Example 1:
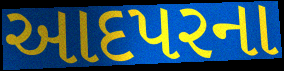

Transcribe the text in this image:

આદપરના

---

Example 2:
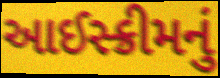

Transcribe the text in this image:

આઈસ્ક્રીમનું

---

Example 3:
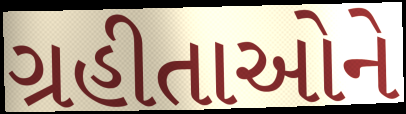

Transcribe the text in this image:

ગ્રહીતાઓને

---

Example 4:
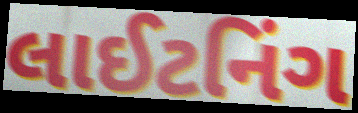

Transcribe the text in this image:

લાઈટનિંગ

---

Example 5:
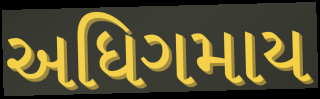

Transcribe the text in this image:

અધિગમાય